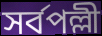
সৰ্বপল্লী